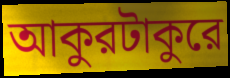
আকুরটাকুরে